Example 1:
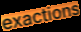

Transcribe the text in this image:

exactions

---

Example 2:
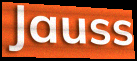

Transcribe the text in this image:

Jauss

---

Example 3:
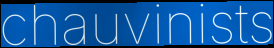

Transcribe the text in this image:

chauvinists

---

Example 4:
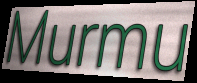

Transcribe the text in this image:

Murmu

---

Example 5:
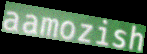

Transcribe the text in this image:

aamozish